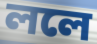
ললে